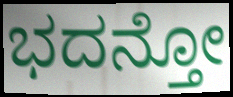
ಭದನ್ತೋ